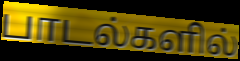
பாடல்களில்